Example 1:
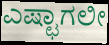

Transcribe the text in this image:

ಎಷ್ಟಾಗಲೀ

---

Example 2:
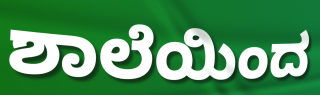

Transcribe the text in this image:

ಶಾಲೆಯಿಂದ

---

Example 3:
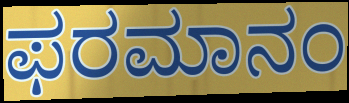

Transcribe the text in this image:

ಫರಮಾನಂ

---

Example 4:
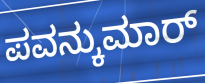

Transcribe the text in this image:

ಪವನ್ಕುಮಾರ್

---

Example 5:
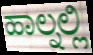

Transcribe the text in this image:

ಹಾಲ್ನಲ್ಲಿ